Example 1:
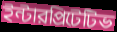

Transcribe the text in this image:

ইন্টারপ্রিটেটিভ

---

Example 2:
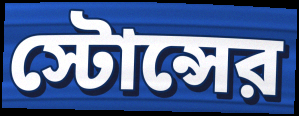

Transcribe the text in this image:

স্টোন্সের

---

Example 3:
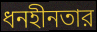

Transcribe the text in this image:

ধনহীনতার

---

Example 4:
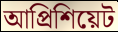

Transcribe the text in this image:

আপ্রিশিয়েট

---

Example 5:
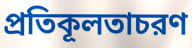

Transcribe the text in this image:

প্রতিকূলতাচরণ